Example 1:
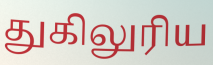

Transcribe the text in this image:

துகிலுரிய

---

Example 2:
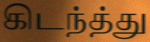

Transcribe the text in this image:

கிடந்த்து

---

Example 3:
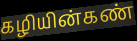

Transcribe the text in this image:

கழியின்கண்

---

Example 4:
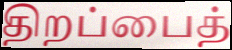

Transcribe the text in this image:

திறப்பைத்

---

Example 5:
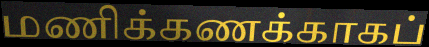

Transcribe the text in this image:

மணிக்கணக்காகப்